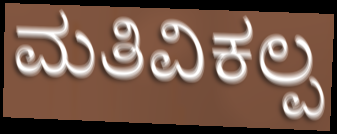
ಮತಿವಿಕಲ್ಪ